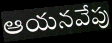
ఆయనవేపు